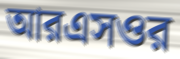
আরএসওর